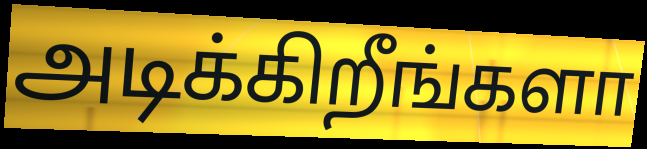
அடிக்கிறீங்களா